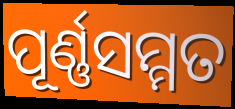
ପୂର୍ଣ୍ଣସମ୍ମତ